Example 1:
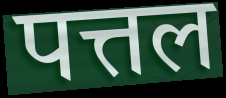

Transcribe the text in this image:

पत्तल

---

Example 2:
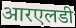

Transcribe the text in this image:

आरएलडी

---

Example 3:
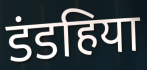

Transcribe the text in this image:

डंडहिया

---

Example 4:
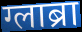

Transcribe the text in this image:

ग्लाब्रा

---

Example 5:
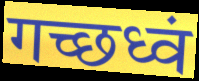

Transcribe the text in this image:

गच्छध्वं